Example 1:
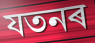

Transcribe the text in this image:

যতনৰ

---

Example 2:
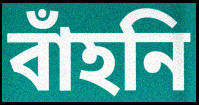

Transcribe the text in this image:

বাঁহনি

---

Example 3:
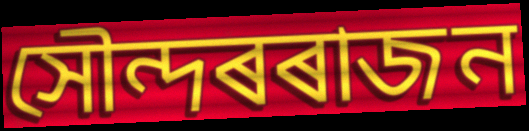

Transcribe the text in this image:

সৌন্দৰৰাজন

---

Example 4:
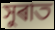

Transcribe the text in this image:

সুৰাত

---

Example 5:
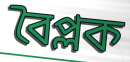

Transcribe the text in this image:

বৈপ্লক